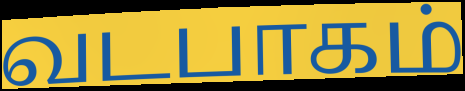
வடபாகம்